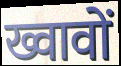
ख्वावों